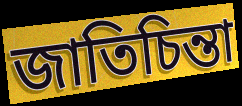
জাতিচিন্তা